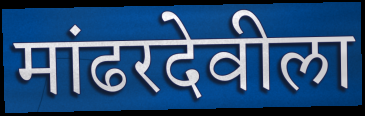
मांढरदेवीला